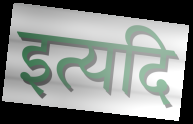
इत्यदि